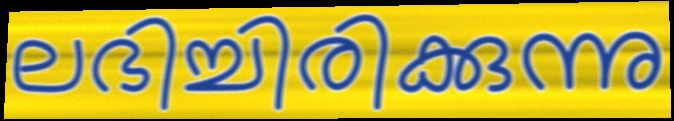
ലഭിച്ചിരിക്കുന്നു